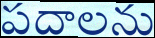
పదాలను